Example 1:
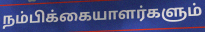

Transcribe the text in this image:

நம்பிக்கையாளர்களும்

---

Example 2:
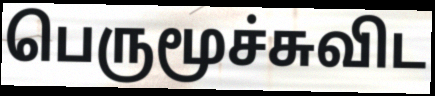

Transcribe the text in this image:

பெருமூச்சுவிட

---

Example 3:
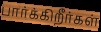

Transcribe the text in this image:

பார்க்கிறீர்கள்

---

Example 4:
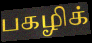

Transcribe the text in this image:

பகழிக்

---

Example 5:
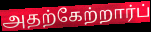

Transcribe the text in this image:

அதற்கேற்றார்ப்